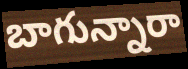
బాగున్నారా